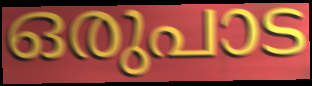
ഒരുപാട